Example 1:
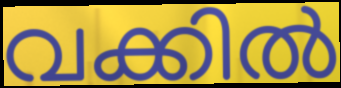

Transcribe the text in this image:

വക്കിൽ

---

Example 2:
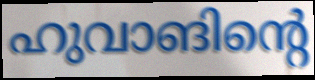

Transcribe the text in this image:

ഹുവാങിന്റെ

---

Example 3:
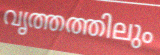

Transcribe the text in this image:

വൃത്തത്തിലും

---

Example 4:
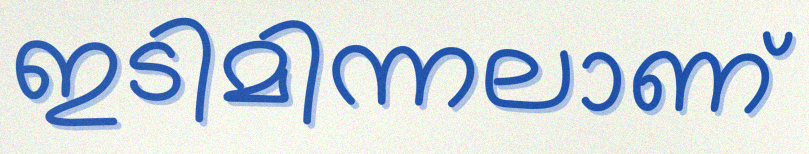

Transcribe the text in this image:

ഇടിമിന്നലാണ്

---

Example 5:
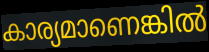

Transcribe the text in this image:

കാര്യമാണെങ്കിൽ